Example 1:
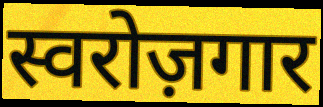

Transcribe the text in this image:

स्वरोज़गार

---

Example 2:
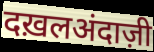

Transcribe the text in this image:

दख़लअंदाज़ी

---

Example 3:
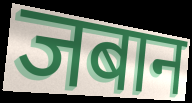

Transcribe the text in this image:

जबान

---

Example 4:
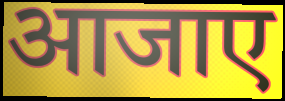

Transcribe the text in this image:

आजाए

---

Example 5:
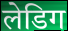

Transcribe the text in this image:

लेडिग